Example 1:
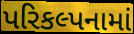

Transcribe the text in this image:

પરિકલ્પનામાં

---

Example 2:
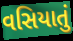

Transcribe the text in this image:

વસિયાતું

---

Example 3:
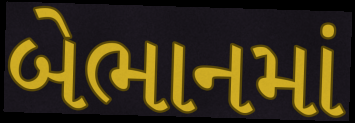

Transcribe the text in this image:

બેભાનમાં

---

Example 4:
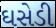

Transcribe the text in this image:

ઘસેડી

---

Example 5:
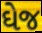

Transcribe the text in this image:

ઘેજ